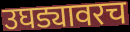
उघड्यावरच